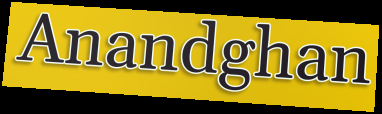
Anandghan